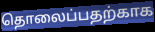
தொலைப்பதற்காக